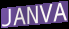
JANVA